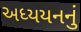
અધ્યયનનું